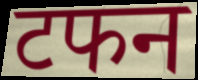
टफन